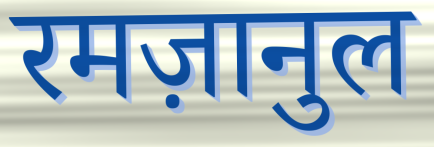
रमज़ानुल